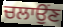
ਚਲਾਉਂਣ